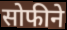
सोफीने